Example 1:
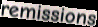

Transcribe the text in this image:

remissions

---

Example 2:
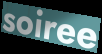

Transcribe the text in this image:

soiree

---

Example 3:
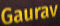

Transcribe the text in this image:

Gaurav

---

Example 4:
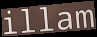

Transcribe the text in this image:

illam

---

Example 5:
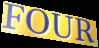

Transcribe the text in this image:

FOUR